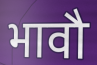
भावौ